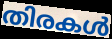
തിരകൾ